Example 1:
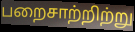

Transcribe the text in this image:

பறைசாற்றிற்று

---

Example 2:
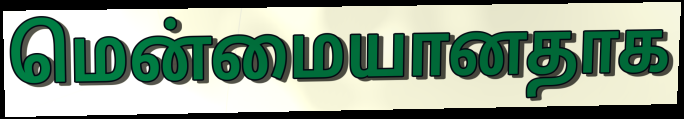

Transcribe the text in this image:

மென்மையானதாக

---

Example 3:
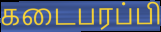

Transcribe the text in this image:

கடைபரப்பி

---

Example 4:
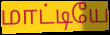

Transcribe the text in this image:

மாட்டியே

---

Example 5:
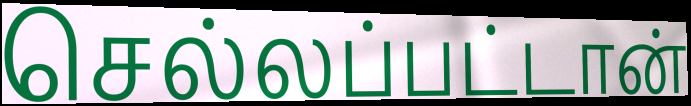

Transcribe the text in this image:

செல்லப்பட்டான்